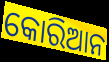
କୋରିଆନ